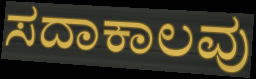
ಸದಾಕಾಲವು